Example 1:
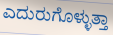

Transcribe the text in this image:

ಎದುರುಗೊಳ್ಳುತ್ತಾ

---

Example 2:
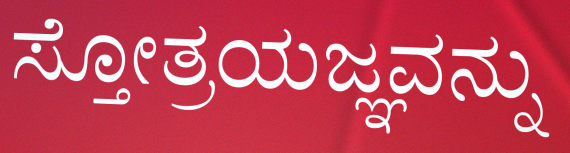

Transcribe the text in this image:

ಸ್ತೋತ್ರಯಜ್ಞವನ್ನು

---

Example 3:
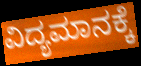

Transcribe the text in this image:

ವಿದ್ಯಮಾನಕ್ಕೆ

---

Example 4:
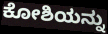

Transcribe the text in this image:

ಕೋಶಿಯನ್ನು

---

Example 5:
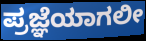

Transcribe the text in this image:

ಪ್ರಜ್ಞೆಯಾಗಲೀ